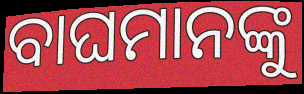
ବାଘମାନଙ୍କୁ